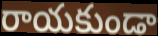
రాయకుండా